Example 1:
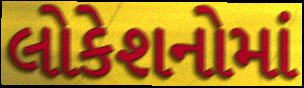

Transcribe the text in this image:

લોકેશનોમાં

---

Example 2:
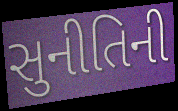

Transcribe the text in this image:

સુનીતિની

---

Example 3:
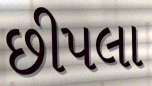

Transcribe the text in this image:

છીપલા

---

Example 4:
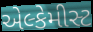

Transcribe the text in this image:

એલ્કેમીસ્ટ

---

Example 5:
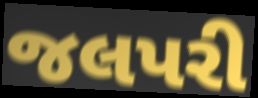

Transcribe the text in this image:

જલપરી